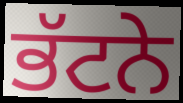
ਭੱਟਨੇ